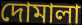
দোমালা